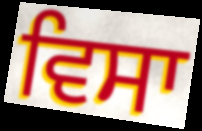
ਵਿਸਾ